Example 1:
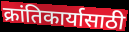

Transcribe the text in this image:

क्रांतिकार्यासाठी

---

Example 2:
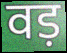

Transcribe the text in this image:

वड़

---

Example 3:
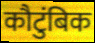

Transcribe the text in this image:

कौटुंबिक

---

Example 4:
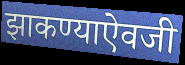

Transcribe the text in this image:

झाकण्याऐवजी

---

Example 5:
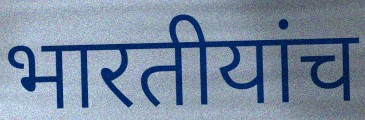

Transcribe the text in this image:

भारतीयांच